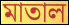
মাতাল